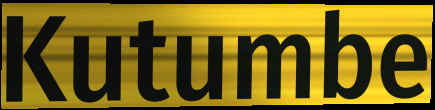
Kutumbe